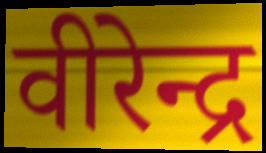
वीरेन्द्र